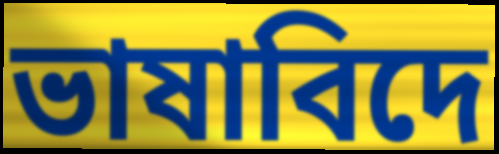
ভাষাবিদে